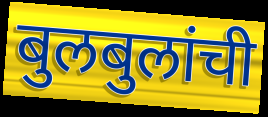
बुलबुलांची